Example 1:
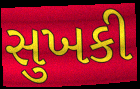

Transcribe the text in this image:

સુખકી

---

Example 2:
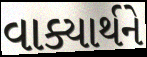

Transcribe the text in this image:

વાક્યાર્થને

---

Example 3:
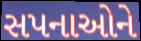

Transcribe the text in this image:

સપનાઓને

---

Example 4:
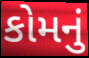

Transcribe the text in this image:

કોમનું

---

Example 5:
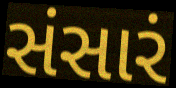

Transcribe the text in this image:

સંસારં